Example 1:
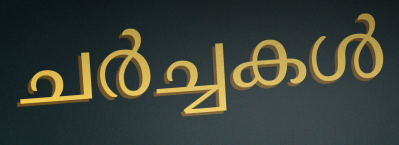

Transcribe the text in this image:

ചർച്ചകൾ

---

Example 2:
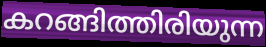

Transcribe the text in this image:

കറങ്ങിത്തിരിയുന്ന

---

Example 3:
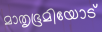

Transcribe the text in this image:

മാതൃഭൂമിയോട്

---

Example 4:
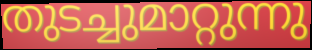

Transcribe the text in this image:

തുടച്ചുമാറ്റുന്നു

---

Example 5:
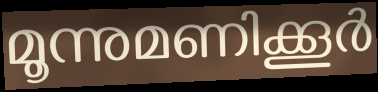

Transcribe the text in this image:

മൂന്നുമണിക്കൂർ